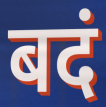
बदं